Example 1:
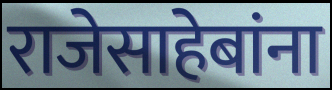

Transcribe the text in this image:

राजेसाहेबांना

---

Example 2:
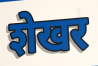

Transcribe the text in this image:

शेखर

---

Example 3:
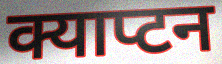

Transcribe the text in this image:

क्याप्टन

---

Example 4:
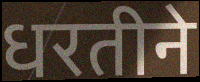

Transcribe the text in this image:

धरतीने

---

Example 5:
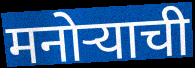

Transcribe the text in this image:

मनोऱ्याची